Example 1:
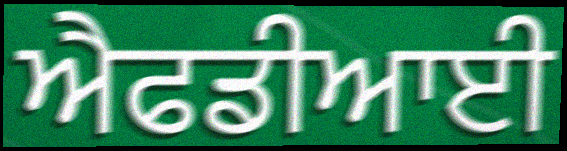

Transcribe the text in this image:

ਐਫਡੀਆਈ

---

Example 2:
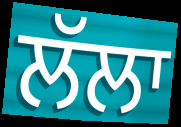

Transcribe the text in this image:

ਲੱਲਾ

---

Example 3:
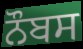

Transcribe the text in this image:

ਨੌਬਸ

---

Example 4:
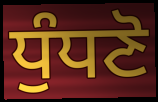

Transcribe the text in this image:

ਧੁੰਧਣੋ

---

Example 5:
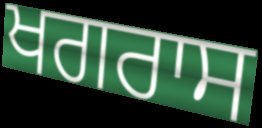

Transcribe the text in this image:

ਖਗਰਾਸ